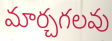
మార్చగలవు